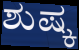
ಶುಷ್ಕ